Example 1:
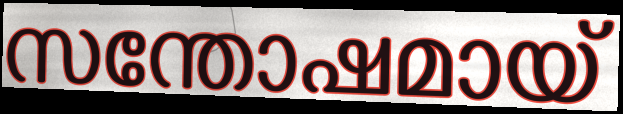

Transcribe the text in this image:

സന്തോഷമായ്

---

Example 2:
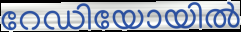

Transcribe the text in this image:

റേഡിയോയിൽ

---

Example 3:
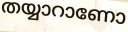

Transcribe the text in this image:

തയ്യാറാണോ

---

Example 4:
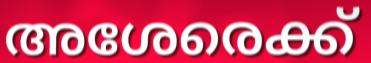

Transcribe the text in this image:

അശേരെക്ക്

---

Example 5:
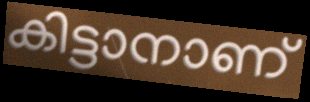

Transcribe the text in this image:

കിട്ടാനാണ്